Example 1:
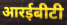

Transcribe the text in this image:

आरईबीटी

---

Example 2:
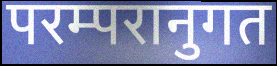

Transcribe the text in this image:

परम्परानुगत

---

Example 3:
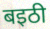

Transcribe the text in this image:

बइठी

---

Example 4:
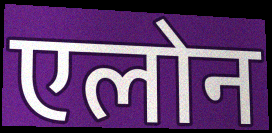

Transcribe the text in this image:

एलोन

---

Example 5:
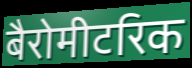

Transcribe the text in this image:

बैरोमीटरिक